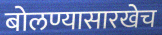
बोलण्यासारखेच